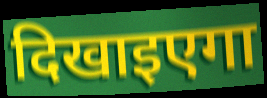
दिखाइएगा